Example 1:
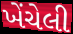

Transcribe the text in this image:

ખેંચેલી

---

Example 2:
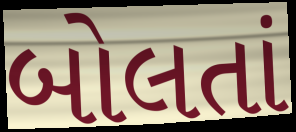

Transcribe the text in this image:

બોલતાં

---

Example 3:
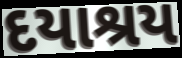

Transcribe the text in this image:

દયાશ્રય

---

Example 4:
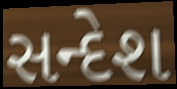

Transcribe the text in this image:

સન્દેશ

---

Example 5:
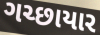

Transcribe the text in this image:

ગચ્છાયાર